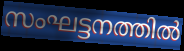
സംഘട്ടനത്തിൽ